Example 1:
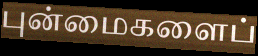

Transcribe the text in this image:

புன்மைகளைப்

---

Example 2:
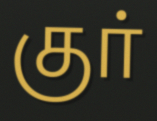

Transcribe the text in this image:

குர்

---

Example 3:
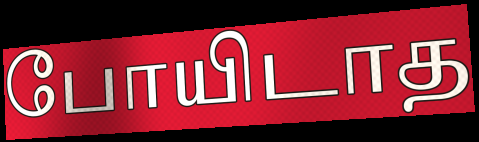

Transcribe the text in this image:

போயிடாத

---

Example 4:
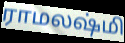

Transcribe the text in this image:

ராமலஷ்மி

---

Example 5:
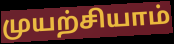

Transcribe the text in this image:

முயற்சியாம்